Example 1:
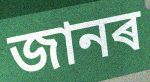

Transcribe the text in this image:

জানৰ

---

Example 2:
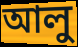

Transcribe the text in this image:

আলু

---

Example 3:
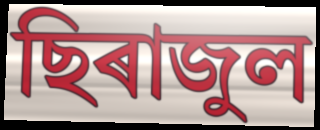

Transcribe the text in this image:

ছিৰাজুল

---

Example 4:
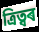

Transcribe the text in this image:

ত্ৰিত্বৰ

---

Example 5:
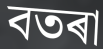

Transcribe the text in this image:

বতৰা